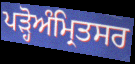
ਪੜ੍ਹੋਅੰਮ੍ਰਿਤਸਰ